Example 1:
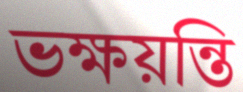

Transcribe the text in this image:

ভক্ষয়ন্তি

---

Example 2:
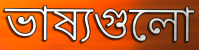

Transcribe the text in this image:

ভাষ্যগুলো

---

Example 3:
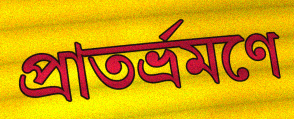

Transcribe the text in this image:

প্রাতর্ভ্রমণে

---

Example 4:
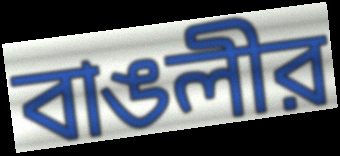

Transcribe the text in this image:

বাঙলীর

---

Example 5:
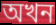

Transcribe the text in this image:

অখন